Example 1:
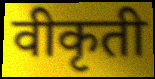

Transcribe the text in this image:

वीकृती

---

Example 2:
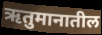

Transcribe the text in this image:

ऋतुमानातील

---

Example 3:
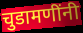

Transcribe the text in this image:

चुडामणींनी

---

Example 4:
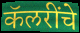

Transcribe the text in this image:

कॅलरींचे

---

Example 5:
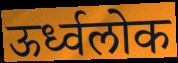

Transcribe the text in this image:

ऊर्ध्वलोक